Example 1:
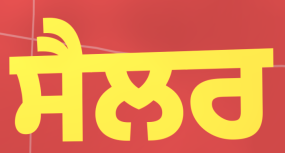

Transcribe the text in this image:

ਸੈਲਰ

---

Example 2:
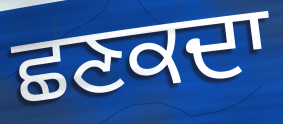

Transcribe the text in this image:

ਛਣਕਦਾ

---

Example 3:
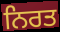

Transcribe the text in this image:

ਨਿਰਤ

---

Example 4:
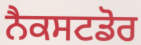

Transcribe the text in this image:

ਨੈਕਸਟਡੋਰ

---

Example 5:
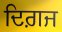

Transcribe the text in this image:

ਦਿਗ਼ਜ